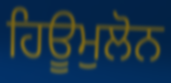
ਹਿਊਮੁਲੋਨ